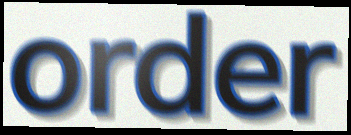
order